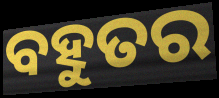
ବହୁତର